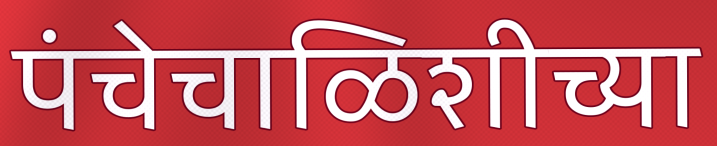
पंचेचाळिशीच्या